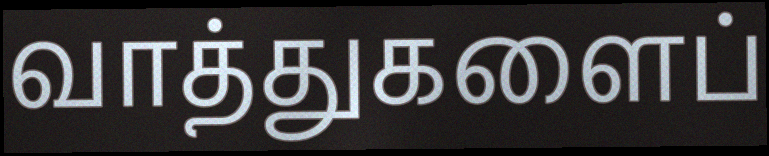
வாத்துகளைப்